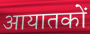
आयातकों